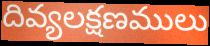
దివ్యలక్షణములు